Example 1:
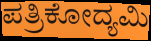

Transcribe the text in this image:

ಪತ್ರಿಕೋದ್ಯಮಿ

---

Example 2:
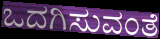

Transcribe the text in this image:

ಒದಗಿಸುವಂತೆ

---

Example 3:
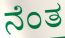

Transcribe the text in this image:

ನೆಂತ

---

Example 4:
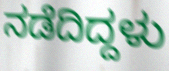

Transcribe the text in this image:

ನಡೆದಿದ್ದಳು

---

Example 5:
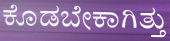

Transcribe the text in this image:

ಕೊಡಬೇಕಾಗಿತ್ತು